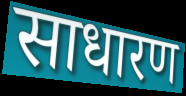
साधारण